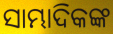
ସାମ୍ଭାଦିକଙ୍କ